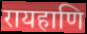
रायहाणि